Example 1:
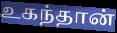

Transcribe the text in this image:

உகந்தான்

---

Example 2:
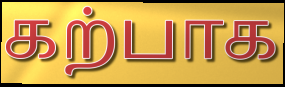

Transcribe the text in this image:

கற்பாக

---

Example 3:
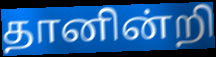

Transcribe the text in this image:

தானின்றி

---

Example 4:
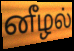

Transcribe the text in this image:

னீழல்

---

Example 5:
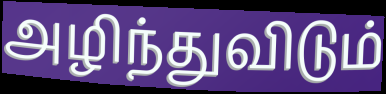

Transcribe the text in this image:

அழிந்துவிடும்